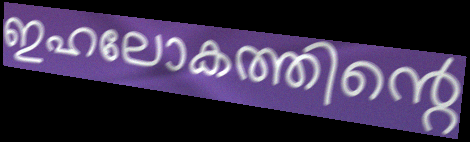
ഇഹലോകത്തിന്റെ